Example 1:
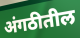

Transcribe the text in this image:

अंगठीतील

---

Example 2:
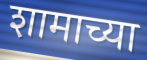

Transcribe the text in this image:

शामाच्या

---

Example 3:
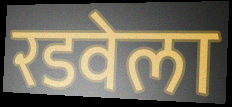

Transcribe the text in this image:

रडवेला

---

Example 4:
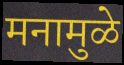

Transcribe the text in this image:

मनामुळे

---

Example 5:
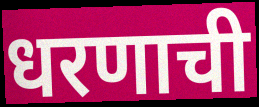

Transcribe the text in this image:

धरणाची